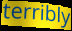
terribly